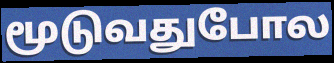
மூடுவதுபோல